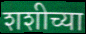
शशीच्या